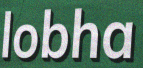
lobha